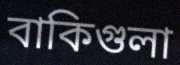
বাকিগুলা